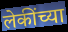
लेकींच्या